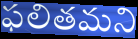
ఫలితమని